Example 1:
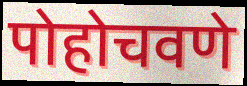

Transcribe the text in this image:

पोहोचवणे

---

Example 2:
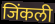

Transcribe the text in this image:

जिंकली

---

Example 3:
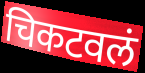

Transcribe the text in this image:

चिकटवलं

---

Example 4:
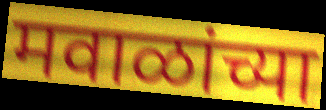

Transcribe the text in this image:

मवाळांच्या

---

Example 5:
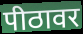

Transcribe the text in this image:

पीठावर